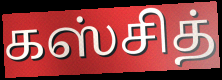
கஸ்சித்